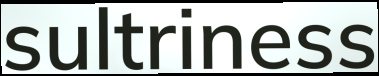
sultriness